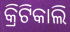
କ୍ରିଟିକାଲି